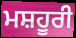
ਮਸ਼ਹੂਰੀ